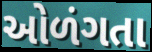
ઓળંગતા